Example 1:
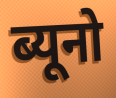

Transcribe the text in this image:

ब्यूनो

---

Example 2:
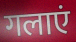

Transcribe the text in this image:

गलाएं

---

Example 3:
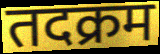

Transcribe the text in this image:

तदक्रम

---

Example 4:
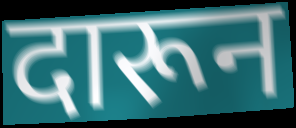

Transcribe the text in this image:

दारून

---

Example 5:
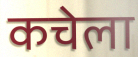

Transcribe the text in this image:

कचेला